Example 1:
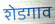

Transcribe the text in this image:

शेडगाव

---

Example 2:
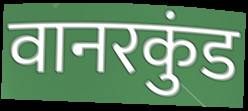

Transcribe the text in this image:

वानरकुंड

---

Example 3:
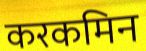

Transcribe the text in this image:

करकमिन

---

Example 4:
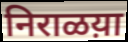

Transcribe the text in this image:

निराळय़ा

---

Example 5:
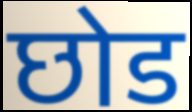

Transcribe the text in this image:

छोड